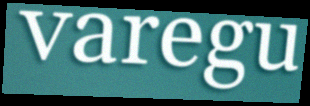
varegu